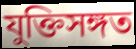
যুক্তিসঙ্গত